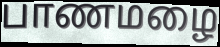
பாணமழை